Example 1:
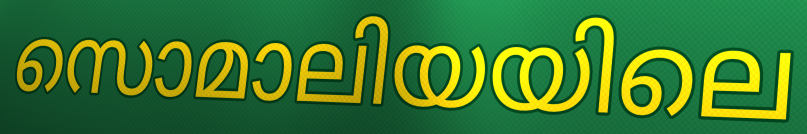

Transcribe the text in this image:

സൊമാലിയയിലെ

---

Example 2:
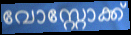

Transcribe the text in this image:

വോസ്റ്റോക്ക്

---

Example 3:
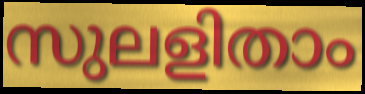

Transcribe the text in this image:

സുലളിതാം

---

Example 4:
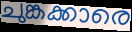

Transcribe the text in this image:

ചുങ്കക്കാരെ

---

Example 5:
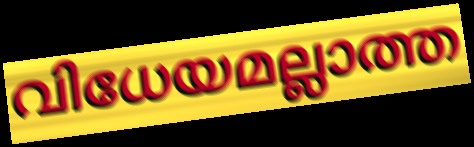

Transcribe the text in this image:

വിധേയമല്ലാത്ത